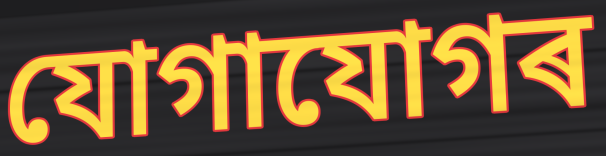
যোগাযোগৰ